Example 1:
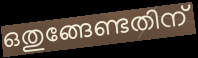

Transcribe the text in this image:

ഒതുങ്ങേണ്ടതിന്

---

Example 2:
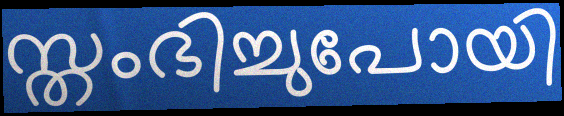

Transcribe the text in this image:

സ്തംഭിച്ചുപോയി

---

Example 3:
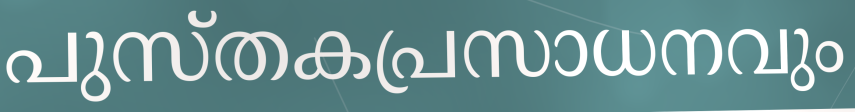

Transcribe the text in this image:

പുസ്തകപ്രസാധനവും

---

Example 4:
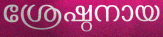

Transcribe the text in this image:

ശ്രേഷ്ഠനായ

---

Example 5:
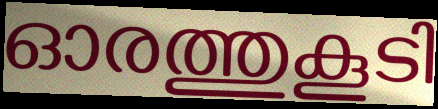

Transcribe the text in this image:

ഓരത്തുകൂടി